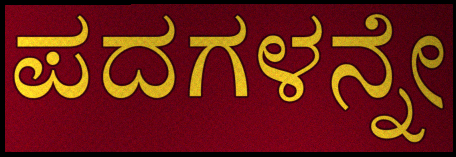
ಪದಗಳನ್ನೇ